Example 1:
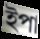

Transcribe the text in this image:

ইপা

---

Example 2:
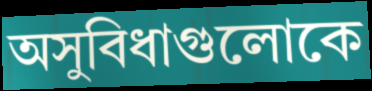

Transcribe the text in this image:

অসুবিধাগুলোকে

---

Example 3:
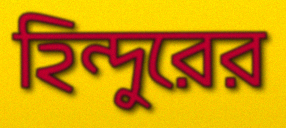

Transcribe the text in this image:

হিন্দুরের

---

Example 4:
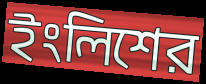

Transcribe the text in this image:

ইংলিশের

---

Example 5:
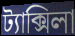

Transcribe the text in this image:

ট্যাক্সিলা